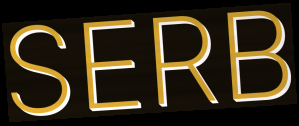
SERB